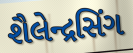
શૈલેન્દ્રસિંગ